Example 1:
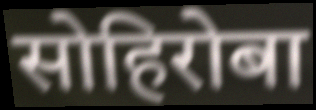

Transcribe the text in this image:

सोहिरोबा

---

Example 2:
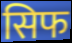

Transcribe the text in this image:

सिफ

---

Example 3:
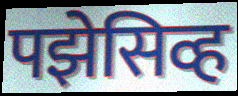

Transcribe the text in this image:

पझेसिव्ह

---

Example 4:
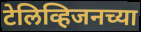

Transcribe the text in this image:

टेलिव्हिजनच्या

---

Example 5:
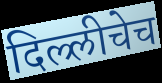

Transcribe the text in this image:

दिल्लीचेच